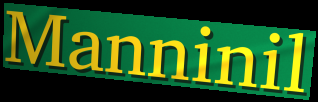
Manninil